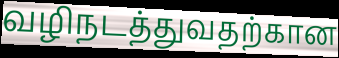
வழிநடத்துவதற்கான